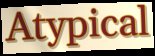
Atypical